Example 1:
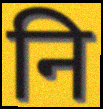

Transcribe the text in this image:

नि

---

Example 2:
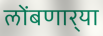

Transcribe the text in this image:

लोंबणार्‍या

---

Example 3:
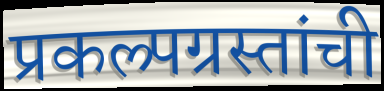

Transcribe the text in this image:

प्रकल्पग्रस्तांची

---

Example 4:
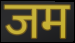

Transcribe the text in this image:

जम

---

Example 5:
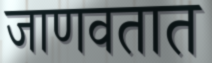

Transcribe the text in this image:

जाणवतात